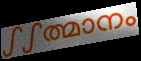
ഽഽത്മാനം